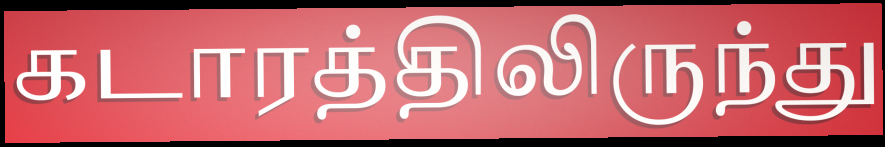
கடாரத்திலிருந்து